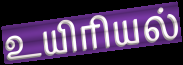
உயிரியல்